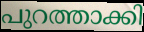
പുറത്താക്കി